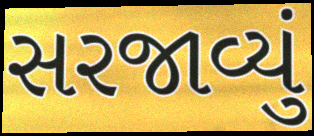
સરજાવ્યું